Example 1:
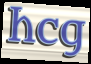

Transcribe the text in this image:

hcg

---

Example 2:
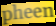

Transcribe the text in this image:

pheen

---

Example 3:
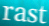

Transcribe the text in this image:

rast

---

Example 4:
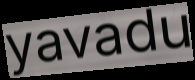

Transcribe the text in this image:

yavadu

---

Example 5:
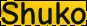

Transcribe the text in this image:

Shuko